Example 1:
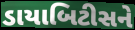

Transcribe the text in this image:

ડાયાબિટીસને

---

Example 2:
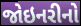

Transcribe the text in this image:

જોઇનરીનો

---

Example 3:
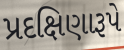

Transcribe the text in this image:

પ્રદક્ષિણારૂપે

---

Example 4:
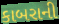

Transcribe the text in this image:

કાબરાની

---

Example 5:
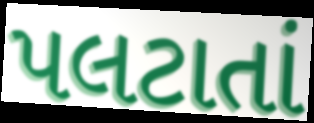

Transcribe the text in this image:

પલટાતાં